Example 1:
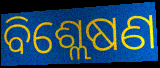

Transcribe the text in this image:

ବିଶ୍ଲେଷଣ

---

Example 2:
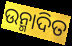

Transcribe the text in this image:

ଉନ୍ମାଦିତ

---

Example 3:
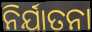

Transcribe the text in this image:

ନିର୍ଯାତନା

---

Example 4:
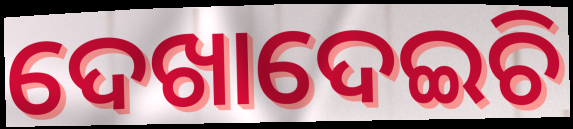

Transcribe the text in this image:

ଦେଖାଦେଇଚି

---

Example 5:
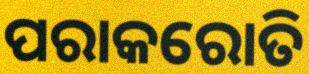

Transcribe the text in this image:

ପରାକରୋତି